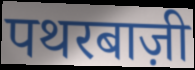
पथरबाज़ी